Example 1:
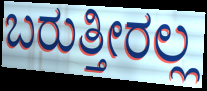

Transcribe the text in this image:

ಬರುತ್ತೀರಲ್ಲ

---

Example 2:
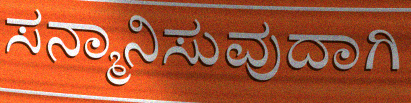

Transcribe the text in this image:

ಸನ್ಮಾನಿಸುವುದಾಗಿ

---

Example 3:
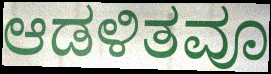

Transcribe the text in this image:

ಆಡಳಿತವೂ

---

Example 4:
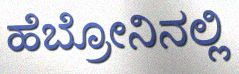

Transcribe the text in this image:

ಹೆಬ್ರೋನಿನಲ್ಲಿ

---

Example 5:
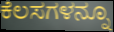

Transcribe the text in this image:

ಕೆಲಸಗಳನ್ನೂ